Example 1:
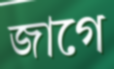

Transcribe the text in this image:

জাগে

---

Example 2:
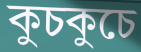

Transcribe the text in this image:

কুচকুচে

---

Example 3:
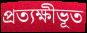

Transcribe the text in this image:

প্রত্যক্ষীভূত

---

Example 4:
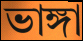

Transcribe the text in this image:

ভাঙ্গা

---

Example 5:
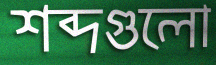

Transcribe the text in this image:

শব্দগুলো